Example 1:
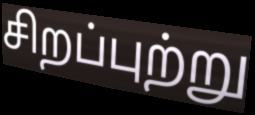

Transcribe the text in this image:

சிறப்புற்று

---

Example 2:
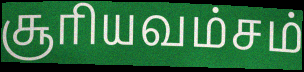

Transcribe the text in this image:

சூரியவம்சம்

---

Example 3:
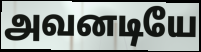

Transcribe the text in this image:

அவனடியே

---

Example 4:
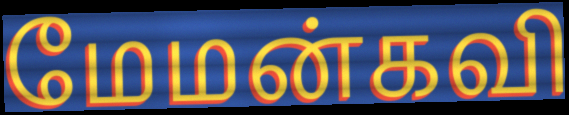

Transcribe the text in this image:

மேமன்கவி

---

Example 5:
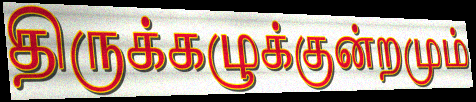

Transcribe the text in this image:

திருக்கழுக்குன்றமும்